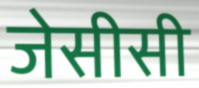
जेसीसी